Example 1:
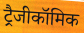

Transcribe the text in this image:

ट्रैजीकॉमिक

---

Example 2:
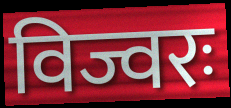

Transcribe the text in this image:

विज्वरः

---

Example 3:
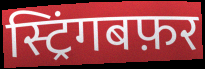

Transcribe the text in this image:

स्ट्रिंगबफ़र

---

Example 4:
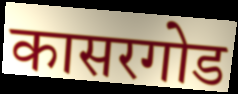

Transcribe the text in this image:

कासरगोड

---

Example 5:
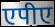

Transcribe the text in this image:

एपीए